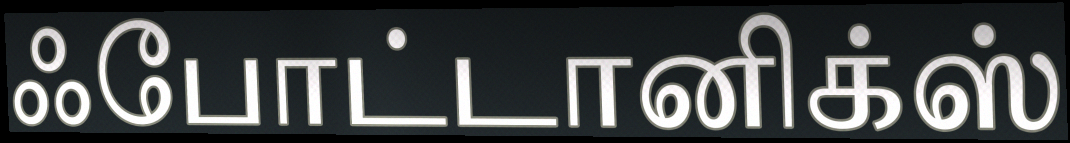
ஃபோட்டானிக்ஸ்